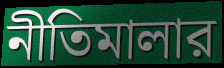
নীতিমালার